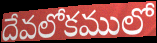
దేవలోకములో